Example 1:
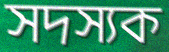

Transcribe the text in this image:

সদস্যক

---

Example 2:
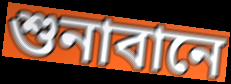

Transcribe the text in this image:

শুনাবানে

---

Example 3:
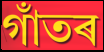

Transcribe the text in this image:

গাঁতৰ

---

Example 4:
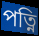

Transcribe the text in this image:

পত্নি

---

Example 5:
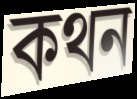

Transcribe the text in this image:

কথন